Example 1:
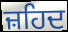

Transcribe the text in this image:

ਜ਼ਹਿਦ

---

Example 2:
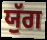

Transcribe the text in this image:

ਯੁੱਗ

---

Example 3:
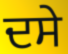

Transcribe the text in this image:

ਦਸੇ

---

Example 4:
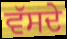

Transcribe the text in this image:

ਵੱਸਦੇ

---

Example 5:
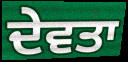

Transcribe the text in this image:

ਦੇਵਤਾ